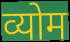
व्योम